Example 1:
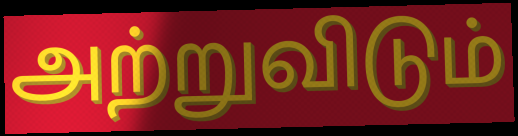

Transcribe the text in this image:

அற்றுவிடும்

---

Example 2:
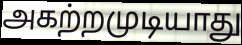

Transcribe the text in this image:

அகற்றமுடியாது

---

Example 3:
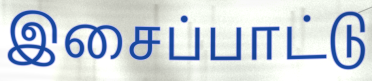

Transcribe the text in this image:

இசைப்பாட்டு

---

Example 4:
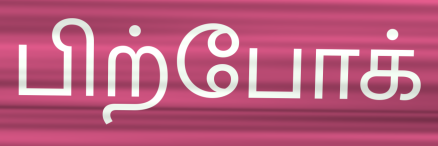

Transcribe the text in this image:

பிற்போக்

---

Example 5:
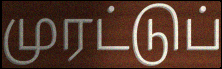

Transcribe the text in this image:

முரட்டுப்